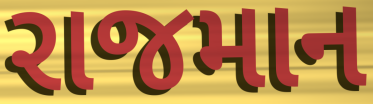
રાજમાન